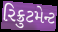
રિક્રુટમેન્ટ